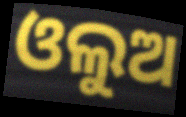
ଓଲୁଅ